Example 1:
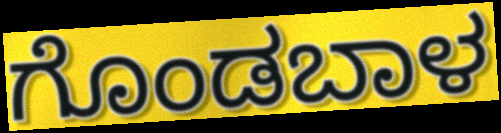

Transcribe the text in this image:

ಗೊಂಡಬಾಳ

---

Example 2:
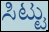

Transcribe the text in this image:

ಸಿಟ್ಟು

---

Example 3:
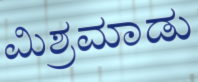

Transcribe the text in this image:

ಮಿಶ್ರಮಾಡು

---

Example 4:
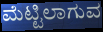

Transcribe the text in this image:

ಮೆಟ್ಟಿಲಾಗುವ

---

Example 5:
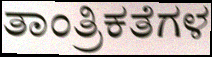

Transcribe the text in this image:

ತಾಂತ್ರಿಕತೆಗಳ